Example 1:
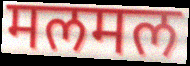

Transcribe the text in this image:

मलमल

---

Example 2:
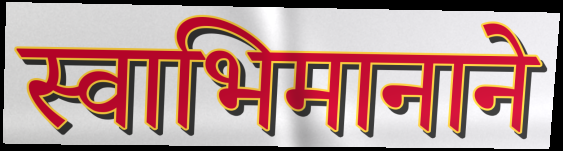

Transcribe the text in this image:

स्वाभिमानाने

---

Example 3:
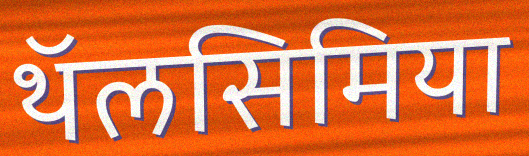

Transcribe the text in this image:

थॅलसिमिया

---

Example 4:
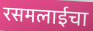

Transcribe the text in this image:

रसमलाईचा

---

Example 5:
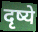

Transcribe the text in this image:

दृष्ये